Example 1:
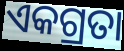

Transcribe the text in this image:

ଏକଗ୍ରତା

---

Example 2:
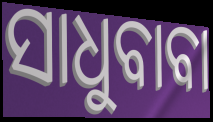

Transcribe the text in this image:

ସାଧୁବାବା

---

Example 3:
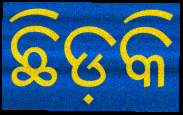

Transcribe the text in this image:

ଛିଡ଼କି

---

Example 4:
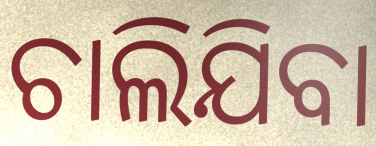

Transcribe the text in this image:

ଚାଲିଯିବା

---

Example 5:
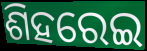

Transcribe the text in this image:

ଶିହରେଇ